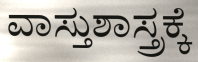
ವಾಸ್ತುಶಾಸ್ತ್ರಕ್ಕೆ